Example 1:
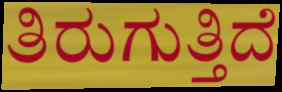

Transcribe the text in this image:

ತಿರುಗುತ್ತಿದೆ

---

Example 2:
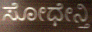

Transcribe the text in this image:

ಸೋಧೇನ್ತಿ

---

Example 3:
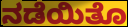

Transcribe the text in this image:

ನಡೆಯಿತೊ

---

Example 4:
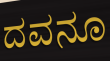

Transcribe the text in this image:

ದವನೂ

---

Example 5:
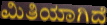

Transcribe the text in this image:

ಮಿತಿಯಾಗಿದೆ